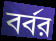
বর্বর